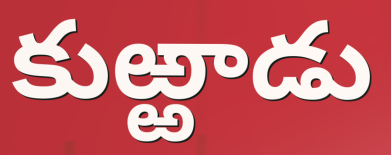
కుఱ్ఱాడు